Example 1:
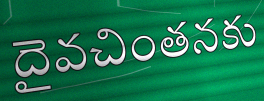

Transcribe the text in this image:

దైవచింతనకు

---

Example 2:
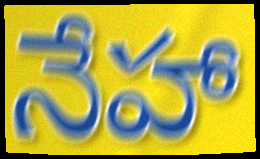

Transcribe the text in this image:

నేహా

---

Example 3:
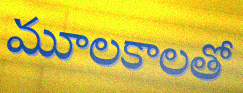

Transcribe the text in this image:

మూలకాలతో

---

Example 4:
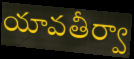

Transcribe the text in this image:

యావతీర్వా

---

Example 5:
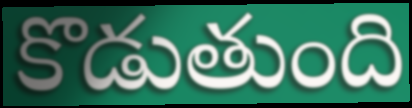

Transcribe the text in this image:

కొడుతుంది